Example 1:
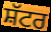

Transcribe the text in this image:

ਸ਼ੱਟਰ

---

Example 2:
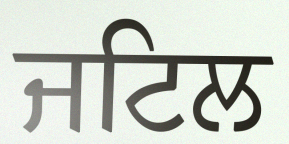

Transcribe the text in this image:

ਜਟਿਲ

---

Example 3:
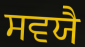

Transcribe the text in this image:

ਸਵਯੈ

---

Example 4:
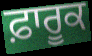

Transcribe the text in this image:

ਫ਼ਾਰੂਕ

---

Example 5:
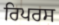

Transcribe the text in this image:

ਰਿਪਰਸ